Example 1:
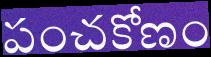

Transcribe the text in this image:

పంచకోణం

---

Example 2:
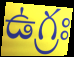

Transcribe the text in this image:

ఉగ్రః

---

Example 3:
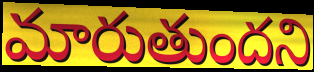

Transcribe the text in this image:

మారుతుందని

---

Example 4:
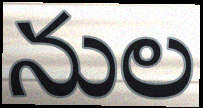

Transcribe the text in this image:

నుల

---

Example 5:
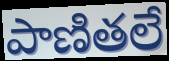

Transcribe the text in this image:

పాణితలే